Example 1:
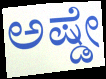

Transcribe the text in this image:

ಅಷ್ಡೇ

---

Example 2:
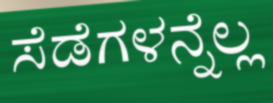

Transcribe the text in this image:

ಸೆಡೆಗಳನ್ನೆಲ್ಲ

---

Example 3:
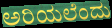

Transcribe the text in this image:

ಅರಿಯಲೆಂದು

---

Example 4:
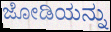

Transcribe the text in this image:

ಜೋಡಿಯನ್ನು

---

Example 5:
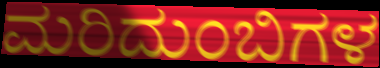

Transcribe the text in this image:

ಮರಿದುಂಬಿಗಳ